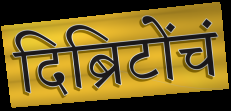
दिब्रिटोंचं